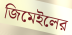
জিমেইলের